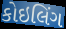
કોઇલિંગ